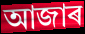
আজাৰ